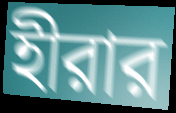
হীরার